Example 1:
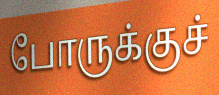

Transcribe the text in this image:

போருக்குச்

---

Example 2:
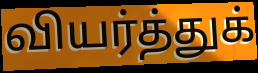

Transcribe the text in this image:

வியர்த்துக்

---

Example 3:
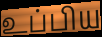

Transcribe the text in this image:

உப்பிய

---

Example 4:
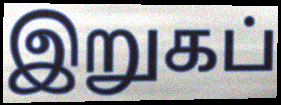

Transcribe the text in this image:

இறுகப்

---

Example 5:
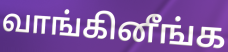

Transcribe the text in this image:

வாங்கினீங்க